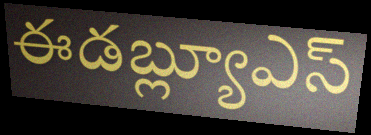
ఈడబ్ల్యూఎస్